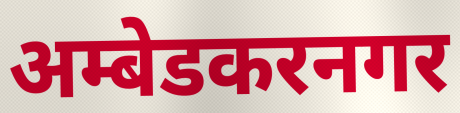
अम्बेडकरनगर